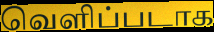
வெளிப்படாக